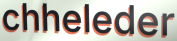
chheleder